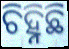
ଚିହ୍ନିଛି